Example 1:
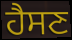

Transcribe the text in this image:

ਹੈਸਣ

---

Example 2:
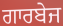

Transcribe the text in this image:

ਗਾਰਬੇਜ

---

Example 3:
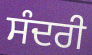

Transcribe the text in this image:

ਸੰਦਰੀ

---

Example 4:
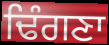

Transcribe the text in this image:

ਢਿੰਗਣਾ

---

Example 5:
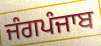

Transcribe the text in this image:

ਜੰਗਪੰਜਾਬ